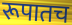
रूपातच